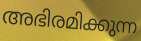
അഭിരമിക്കുന്ന